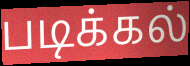
படிக்கல்